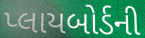
પ્લાયબોર્ડની